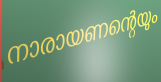
നാരായണന്റെയും